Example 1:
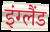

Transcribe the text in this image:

इंग्लैंड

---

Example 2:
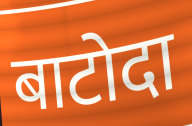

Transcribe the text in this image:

बाटोदा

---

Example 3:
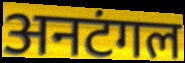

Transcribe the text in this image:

अनटंगल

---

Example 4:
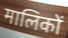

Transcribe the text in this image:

मालिकों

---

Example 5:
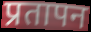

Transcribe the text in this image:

प्रतापन